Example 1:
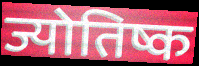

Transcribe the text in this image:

ज्योतिष्क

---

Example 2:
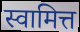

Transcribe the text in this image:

स्वामित्त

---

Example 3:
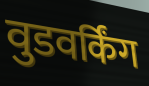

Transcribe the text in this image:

वुडवर्किंग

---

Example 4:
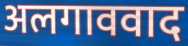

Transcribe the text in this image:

अलगाववाद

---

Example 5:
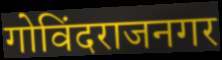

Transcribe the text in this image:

गोविंदराजनगर